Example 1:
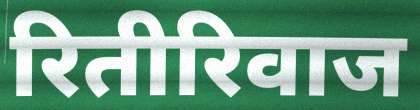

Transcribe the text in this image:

रितीरिवाज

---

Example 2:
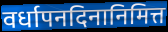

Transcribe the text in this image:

वर्धापनदिनानिमित्त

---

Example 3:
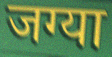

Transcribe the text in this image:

जग्या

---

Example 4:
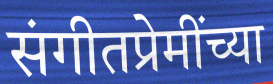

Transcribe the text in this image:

संगीतप्रेमींच्या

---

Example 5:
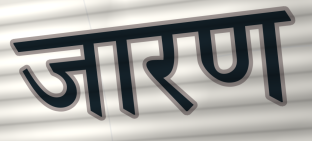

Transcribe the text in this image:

जारण